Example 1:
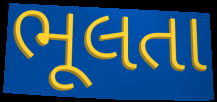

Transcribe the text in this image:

ભૂલતા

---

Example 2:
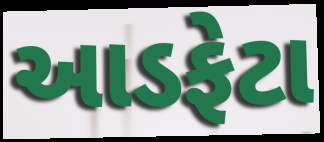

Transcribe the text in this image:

આડફેટા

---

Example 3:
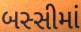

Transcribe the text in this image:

બસ્સીમાં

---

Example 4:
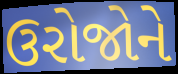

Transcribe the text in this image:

ઉરોજોને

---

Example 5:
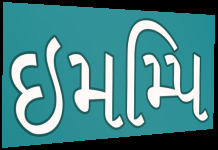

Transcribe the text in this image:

ઇમમ્પિ